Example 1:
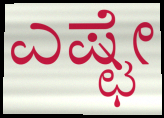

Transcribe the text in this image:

ಎಷ್ಟೇ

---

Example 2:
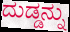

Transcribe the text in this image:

ದುಡ್ಡನ್ನು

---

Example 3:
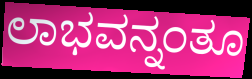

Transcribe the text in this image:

ಲಾಭವನ್ನಂತೂ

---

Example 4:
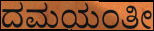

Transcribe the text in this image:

ದಮಯಂತೀ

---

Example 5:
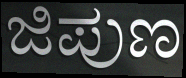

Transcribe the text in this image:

ಜಿಪುಣ